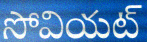
సోవియట్